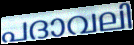
പദാവലി